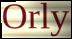
Orly